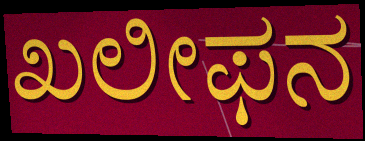
ಖಲೀಫನ